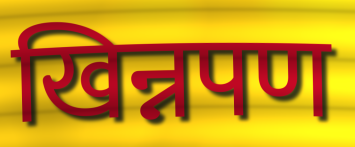
खिन्नपण